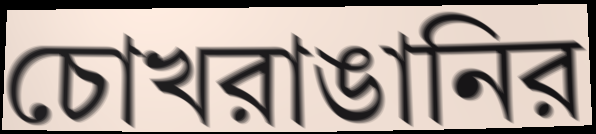
চোখরাঙানির